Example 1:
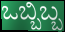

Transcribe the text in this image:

ಒಬ್ಬಿಬ್ಬ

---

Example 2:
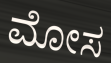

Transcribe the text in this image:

ಮೋಸ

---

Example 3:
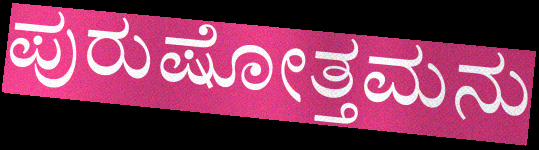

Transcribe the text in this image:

ಪುರುಷೋತ್ತಮನು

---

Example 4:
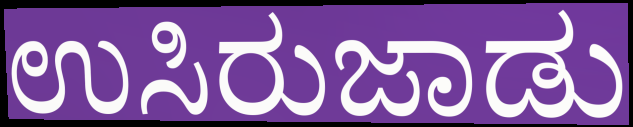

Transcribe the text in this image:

ಉಸಿರುಜಾಡು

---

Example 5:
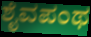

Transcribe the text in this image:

ಶೈವಪಂಥ